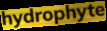
hydrophyte